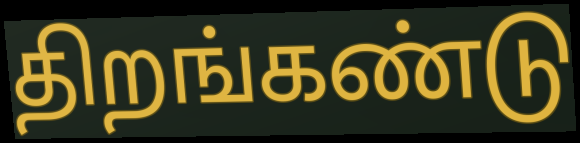
திறங்கண்டு